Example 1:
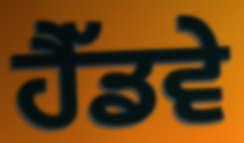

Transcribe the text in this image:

ਹੈੱਡਵੇ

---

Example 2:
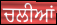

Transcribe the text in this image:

ਚਲੀਆਂ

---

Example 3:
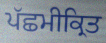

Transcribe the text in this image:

ਪੱਛਮੀਕ੍ਰਿਤ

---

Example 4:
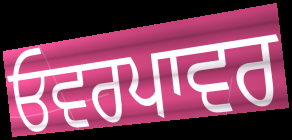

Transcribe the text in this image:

ਓਵਰਪਾਵਰ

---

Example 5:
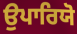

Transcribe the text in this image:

ਉਪਾਰਿਯੋ